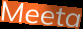
Meeta